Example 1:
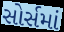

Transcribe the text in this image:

સોર્સમાં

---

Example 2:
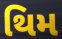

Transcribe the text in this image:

થિમ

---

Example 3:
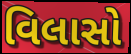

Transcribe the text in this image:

વિલાસો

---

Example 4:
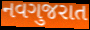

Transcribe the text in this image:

નવગુજરાત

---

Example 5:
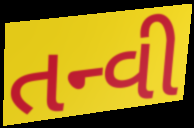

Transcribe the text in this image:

તન્વી